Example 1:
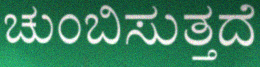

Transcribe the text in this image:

ಚುಂಬಿಸುತ್ತದೆ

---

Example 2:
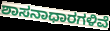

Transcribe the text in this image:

ಶಾಸನಾಧಾರಗಳಿವೆ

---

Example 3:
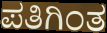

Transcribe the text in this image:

ಪತಿಗಿಂತ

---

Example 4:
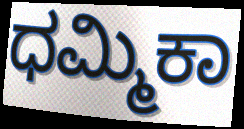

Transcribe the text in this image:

ಧಮ್ಮಿಕಾ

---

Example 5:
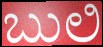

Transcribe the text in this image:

ಬುಲಿ